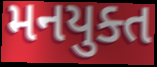
મનયુક્ત